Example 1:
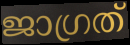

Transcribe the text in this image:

ജാഗ്രത്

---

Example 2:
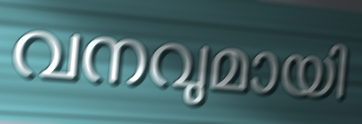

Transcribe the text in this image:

വനവുമായി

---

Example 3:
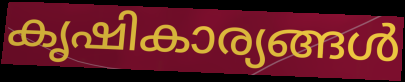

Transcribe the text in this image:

കൃഷികാര്യങ്ങൾ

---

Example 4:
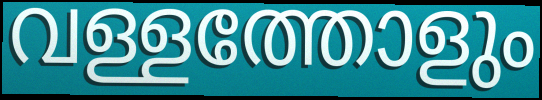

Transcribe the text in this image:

വള്ളത്തോളും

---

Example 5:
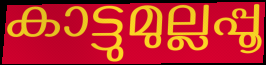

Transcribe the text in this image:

കാട്ടുമുല്ലപ്പൂ